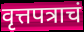
वृत्तपत्राचं